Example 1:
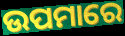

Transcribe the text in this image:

ଉପମାରେ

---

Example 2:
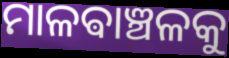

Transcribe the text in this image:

ମାଳଵାଞ୍ଚଳକୁ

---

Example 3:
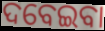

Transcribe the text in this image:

ଦବେଇବା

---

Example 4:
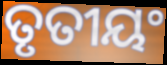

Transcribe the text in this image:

ତୃତୀୟଂ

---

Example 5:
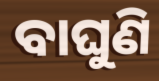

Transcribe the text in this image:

ବାଘୁଣି